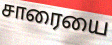
சாரையை